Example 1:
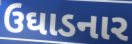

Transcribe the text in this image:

ઉઘાડનાર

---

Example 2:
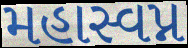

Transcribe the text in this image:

મહાસ્વપ્ન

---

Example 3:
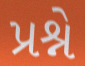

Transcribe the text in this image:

પ્રશ્ને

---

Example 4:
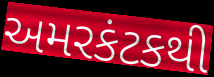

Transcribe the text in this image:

અમરકંટકથી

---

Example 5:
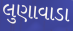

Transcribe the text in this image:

લુણાવાડા